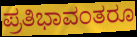
ಪ್ರತಿಭಾವಂತರೂ